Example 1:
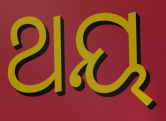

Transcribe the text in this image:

ଥୟ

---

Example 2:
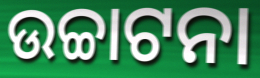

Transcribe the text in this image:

ଉଚ୍ଚାଟନା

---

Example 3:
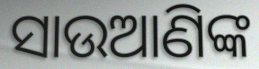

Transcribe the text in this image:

ସାଉଆଣିଙ୍କ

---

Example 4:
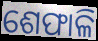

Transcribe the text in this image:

ଶେଫାଳି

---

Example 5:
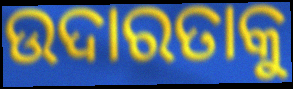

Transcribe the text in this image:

ଉଦାରତାକୁ